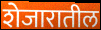
शेजारातील